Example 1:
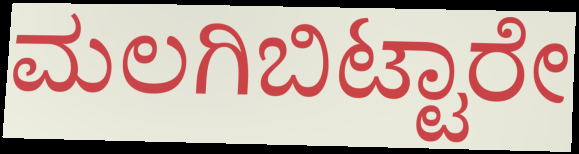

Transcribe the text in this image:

ಮಲಗಿಬಿಟ್ಟಾರೇ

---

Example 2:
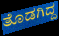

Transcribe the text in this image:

ತೊಡಗಿದ್ದ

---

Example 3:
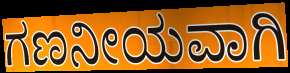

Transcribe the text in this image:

ಗಣನೀಯವಾಗಿ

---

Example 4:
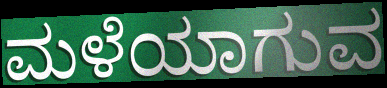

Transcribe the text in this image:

ಮಳೆಯಾಗುವ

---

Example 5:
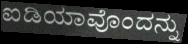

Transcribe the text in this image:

ಐಡಿಯಾವೊಂದನ್ನು